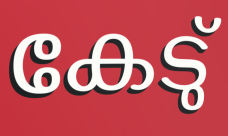
കേടു്